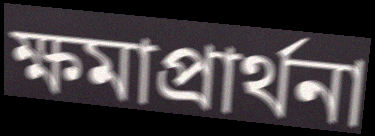
ক্ষমাপ্রার্থনা